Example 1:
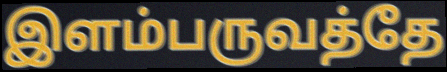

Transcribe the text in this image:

இளம்பருவத்தே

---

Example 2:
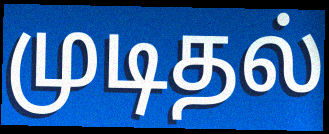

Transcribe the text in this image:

முடிதல்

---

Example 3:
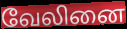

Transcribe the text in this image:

வேலினை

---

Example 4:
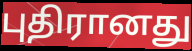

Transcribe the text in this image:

புதிரானது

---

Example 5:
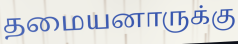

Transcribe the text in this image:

தமையனாருக்கு